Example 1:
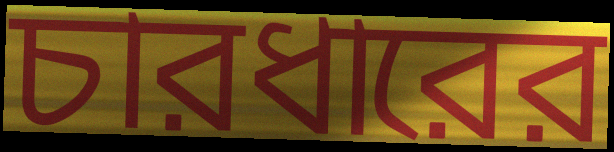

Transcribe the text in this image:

চারধারের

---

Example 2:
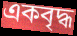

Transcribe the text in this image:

একবৃদ্ধ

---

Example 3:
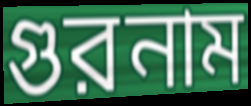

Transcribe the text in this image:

গুরনাম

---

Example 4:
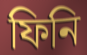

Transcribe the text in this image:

ফিনি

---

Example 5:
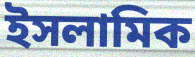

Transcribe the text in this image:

ইসলামিক